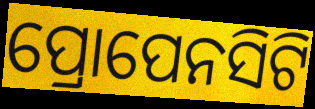
ପ୍ରୋପେନସିଟି